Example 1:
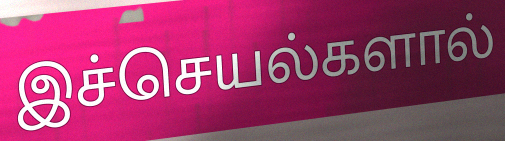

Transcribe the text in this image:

இச்செயல்களால்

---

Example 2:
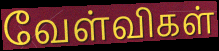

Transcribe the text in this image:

வேள்விகள்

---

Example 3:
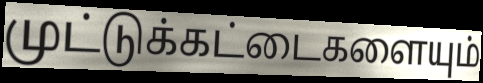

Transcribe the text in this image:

முட்டுக்கட்டைகளையும்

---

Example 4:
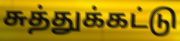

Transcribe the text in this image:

சுத்துக்கட்டு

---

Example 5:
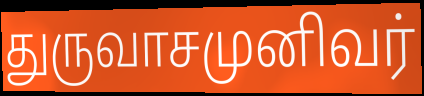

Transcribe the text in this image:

துருவாசமுனிவர்